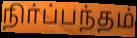
நிர்ப்பந்தம்